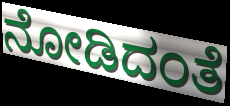
ನೋಡಿದಂತೆ